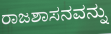
ರಾಜಶಾಸನವನ್ನು